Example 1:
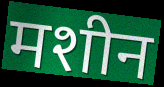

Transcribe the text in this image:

मशीन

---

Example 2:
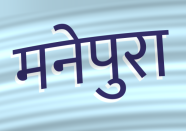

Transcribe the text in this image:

मनेपुरा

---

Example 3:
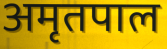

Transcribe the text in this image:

अमृतपाल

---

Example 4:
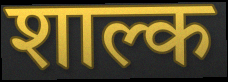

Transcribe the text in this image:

शाल्क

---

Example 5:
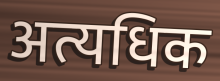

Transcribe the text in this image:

अत्यधिक